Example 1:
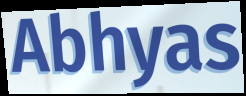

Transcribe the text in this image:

Abhyas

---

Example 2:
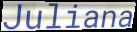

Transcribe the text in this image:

Juliana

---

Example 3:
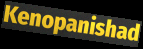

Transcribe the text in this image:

Kenopanishad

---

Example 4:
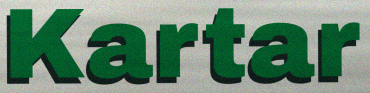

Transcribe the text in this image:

Kartar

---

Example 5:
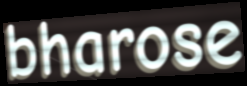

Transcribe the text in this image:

bharose